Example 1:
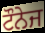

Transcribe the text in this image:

ਟੌਨੇਜ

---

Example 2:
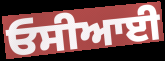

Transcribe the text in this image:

ਓਸੀਆਈ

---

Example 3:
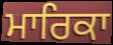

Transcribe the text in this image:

ਮਾਰਿਕਾ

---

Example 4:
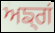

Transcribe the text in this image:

ਅਙ੍ਗਂ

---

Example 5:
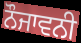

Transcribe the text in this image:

ਨੌਜਾਵਨੀ